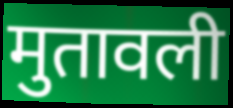
मुतावली